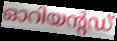
ഓറിയന്റഡ്